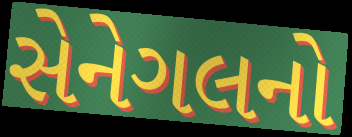
સેનેગલનો